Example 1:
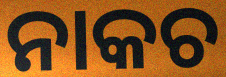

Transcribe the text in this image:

ନାକଚ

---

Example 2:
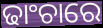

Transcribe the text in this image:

ଢାଂଚାରେ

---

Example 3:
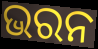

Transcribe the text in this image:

ଭରନ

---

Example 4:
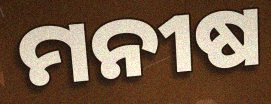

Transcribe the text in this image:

ମନୀଷ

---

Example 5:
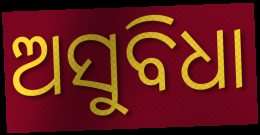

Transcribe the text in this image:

ଅସୁବିଧା